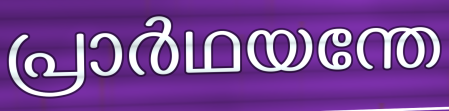
പ്രാർഥയന്തേ